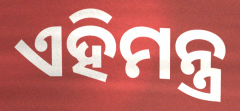
ଏହିମନ୍ତ୍ର